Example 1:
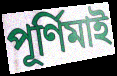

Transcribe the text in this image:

পূৰ্ণিমাই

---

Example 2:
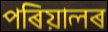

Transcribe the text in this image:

পৰিয়ালৰ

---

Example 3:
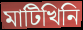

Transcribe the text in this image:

মাটিখিনি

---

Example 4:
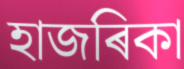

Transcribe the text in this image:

হাজৰিকা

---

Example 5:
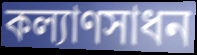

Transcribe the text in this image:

কল্যাণসাধন